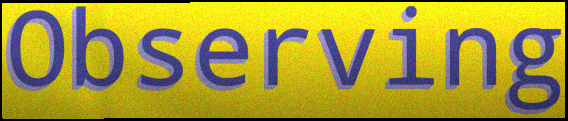
Observing